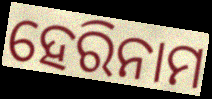
ହେରିନାମ